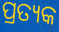
ପ୍ରତ୍ୟକ